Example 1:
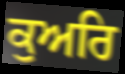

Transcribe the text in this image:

ਕੁਅਰਿ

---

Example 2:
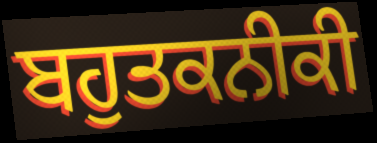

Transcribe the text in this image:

ਬਹੁਤਕਨੀਕੀ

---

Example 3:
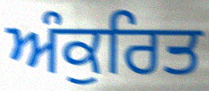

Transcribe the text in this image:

ਅੰਕੁਰਿਤ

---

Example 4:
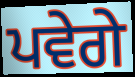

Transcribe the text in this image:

ਪਵੇਗੇ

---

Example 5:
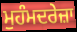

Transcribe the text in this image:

ਮੁਹੰਮਦਰੇਜ਼ਾ